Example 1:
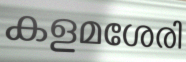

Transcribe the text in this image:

കളമശേരി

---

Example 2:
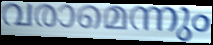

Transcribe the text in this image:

വരാമെന്നും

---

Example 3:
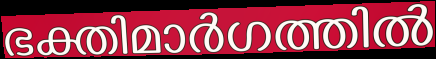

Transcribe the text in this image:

ഭക്തിമാർഗത്തിൽ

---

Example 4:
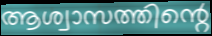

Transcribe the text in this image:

ആശ്വാസത്തിന്റെ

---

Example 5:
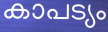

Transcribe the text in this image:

കാപട്യം